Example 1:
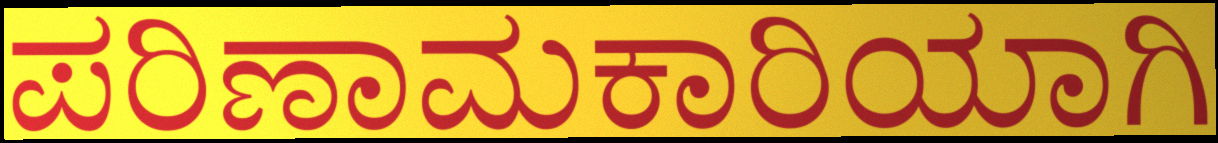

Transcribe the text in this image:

ಪರಿಣಾಮಕಾರಿಯಾಗಿ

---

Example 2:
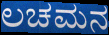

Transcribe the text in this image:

ಲಚಮನ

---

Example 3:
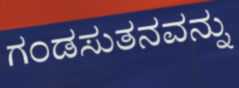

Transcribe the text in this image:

ಗಂಡಸುತನವನ್ನು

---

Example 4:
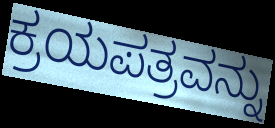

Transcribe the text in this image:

ಕ್ರಯಪತ್ರವನ್ನು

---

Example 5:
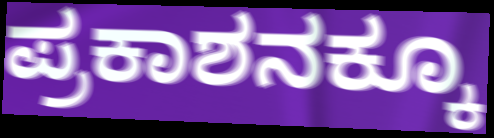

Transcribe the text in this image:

ಪ್ರಕಾಶನಕ್ಕೂ